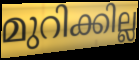
മുറിക്കില്ല